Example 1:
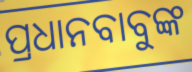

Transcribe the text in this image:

ପ୍ରଧାନବାବୁଙ୍କ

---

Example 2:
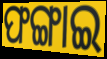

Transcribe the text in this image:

ଫଙ୍ଗାଇ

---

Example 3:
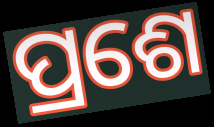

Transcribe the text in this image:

ପ୍ରଶେ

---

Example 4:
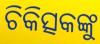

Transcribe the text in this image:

ଚିକିତ୍ସକଙ୍କୁ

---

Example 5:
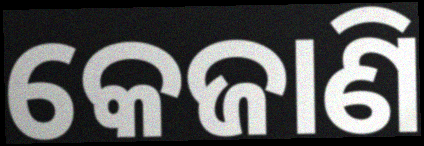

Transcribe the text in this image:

କେଜାଣି